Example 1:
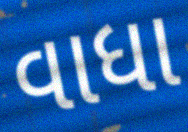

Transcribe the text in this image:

વાધા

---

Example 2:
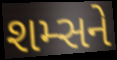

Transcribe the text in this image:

શમ્સને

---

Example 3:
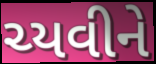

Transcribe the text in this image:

ચ્યવીને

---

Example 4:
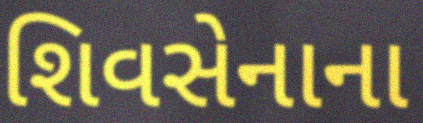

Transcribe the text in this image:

શિવસેનાના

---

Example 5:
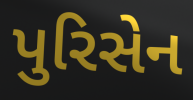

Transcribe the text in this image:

પુરિસેન